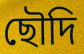
ছৌদি